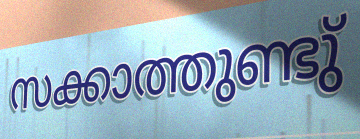
സക്കാത്തുണ്ടു്